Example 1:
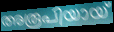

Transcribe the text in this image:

അരൂപിയായ്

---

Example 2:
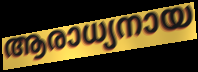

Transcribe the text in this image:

ആരാധ്യനായ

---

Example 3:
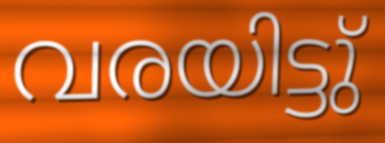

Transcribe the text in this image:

വരയിട്ടു്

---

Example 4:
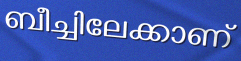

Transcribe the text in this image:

ബീച്ചിലേക്കാണ്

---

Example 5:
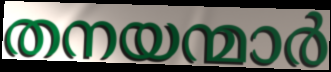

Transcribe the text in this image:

തനയന്മാർ